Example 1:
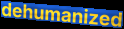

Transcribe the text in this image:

dehumanized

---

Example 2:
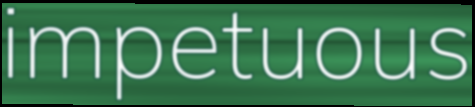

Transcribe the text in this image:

impetuous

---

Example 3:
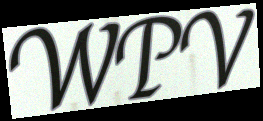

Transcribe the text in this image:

WPV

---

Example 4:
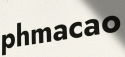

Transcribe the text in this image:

phmacao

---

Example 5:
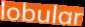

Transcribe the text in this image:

lobular